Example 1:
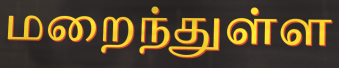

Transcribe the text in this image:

மறைந்துள்ள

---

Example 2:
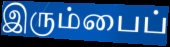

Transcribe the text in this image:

இரும்பைப்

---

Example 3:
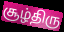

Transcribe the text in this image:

சூழ்திரு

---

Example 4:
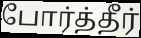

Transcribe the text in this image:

போர்த்தீர்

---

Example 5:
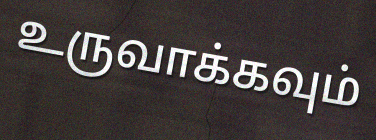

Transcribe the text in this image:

உருவாக்கவும்